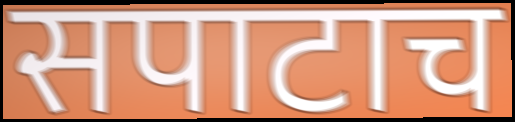
सपाटाच